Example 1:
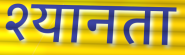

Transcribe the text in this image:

श्यानता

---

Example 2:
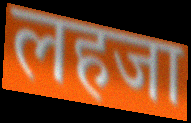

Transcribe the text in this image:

लहजा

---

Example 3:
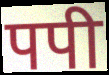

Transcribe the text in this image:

पपी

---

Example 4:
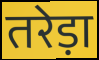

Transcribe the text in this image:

तरेड़ा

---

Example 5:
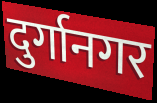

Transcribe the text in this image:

दुर्गानगर